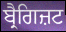
ਬ੍ਰੈਗਿਜ਼ਟ